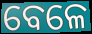
ବେଳେ